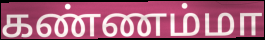
கண்ணம்மா